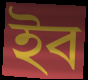
ইব